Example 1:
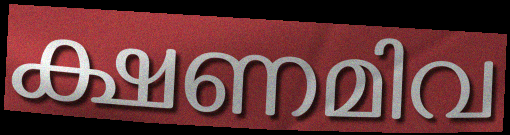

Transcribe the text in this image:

ക്ഷണമിവ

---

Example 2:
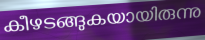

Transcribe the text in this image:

കീഴടങ്ങുകയായിരുന്നു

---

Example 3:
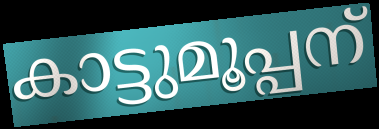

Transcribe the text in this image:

കാട്ടുമൂപ്പന്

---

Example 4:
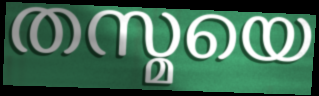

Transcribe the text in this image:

തസ്മയെ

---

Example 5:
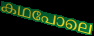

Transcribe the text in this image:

കഥപോലെ